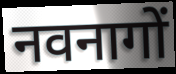
नवनागों